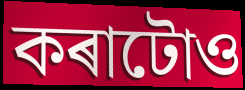
কৰাটোও